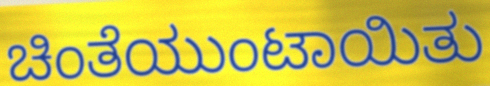
ಚಿಂತೆಯುಂಟಾಯಿತು